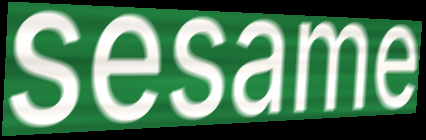
sesame